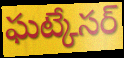
ఘట్కేసర్